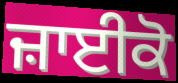
ਜ਼ਾਈਕੋ